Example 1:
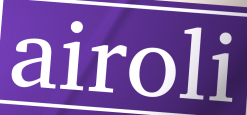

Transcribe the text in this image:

airoli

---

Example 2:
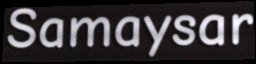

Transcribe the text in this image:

Samaysar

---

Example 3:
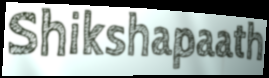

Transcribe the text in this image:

Shikshapaath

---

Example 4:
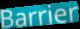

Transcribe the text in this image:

Barrier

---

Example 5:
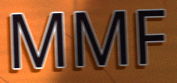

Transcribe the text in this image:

MMF